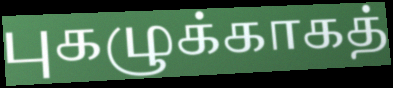
புகழுக்காகத்